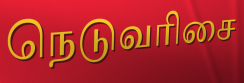
நெடுவரிசை